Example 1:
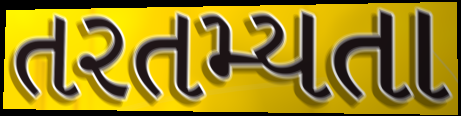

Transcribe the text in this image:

તરતમ્યતા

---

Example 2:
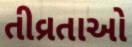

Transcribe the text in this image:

તીવ્રતાઓ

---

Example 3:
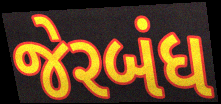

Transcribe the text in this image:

જેરબંધ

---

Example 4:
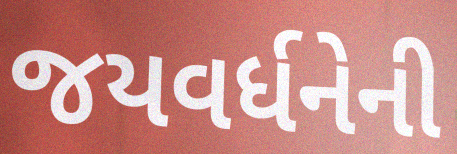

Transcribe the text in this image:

જયવર્ધનેની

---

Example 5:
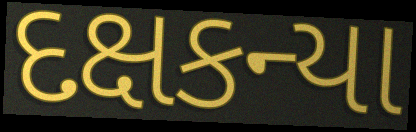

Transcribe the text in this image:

દક્ષકન્યા